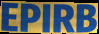
EPIRB